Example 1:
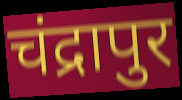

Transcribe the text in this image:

चंद्रापुर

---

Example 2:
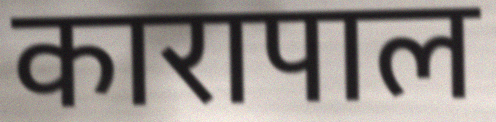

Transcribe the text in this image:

कारापाल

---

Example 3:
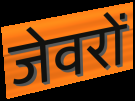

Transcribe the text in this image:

जेवरों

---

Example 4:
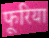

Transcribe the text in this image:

फूरिया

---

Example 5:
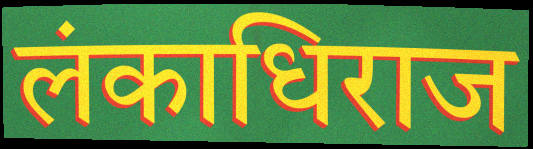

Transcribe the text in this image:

लंकाधिराज